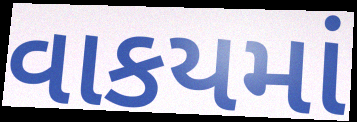
વાકયમાં